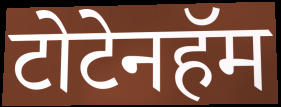
टोटेनहॅम